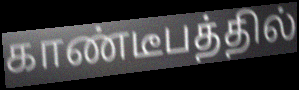
காண்டீபத்தில்